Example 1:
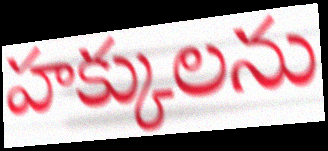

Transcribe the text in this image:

హక్కులను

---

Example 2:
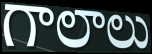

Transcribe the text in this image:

గాలాలు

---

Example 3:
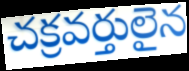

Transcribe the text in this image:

చక్రవర్తులైన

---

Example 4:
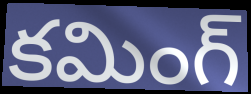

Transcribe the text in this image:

కమింగ్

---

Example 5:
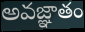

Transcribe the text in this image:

అవజ్ఞాతం